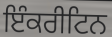
ਇੰਕਰੀਟਿਨ